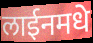
लाईनमधे